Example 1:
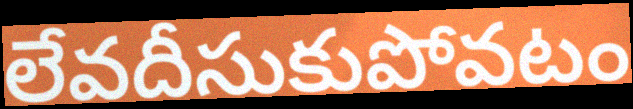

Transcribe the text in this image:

లేవదీసుకుపోవటం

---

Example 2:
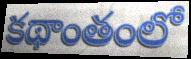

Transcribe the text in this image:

కథాంతంలో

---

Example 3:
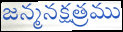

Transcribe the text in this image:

జన్మనక్షత్రము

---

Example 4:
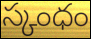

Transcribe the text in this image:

స్కంధం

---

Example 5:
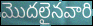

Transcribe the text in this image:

మొదలైనవారి